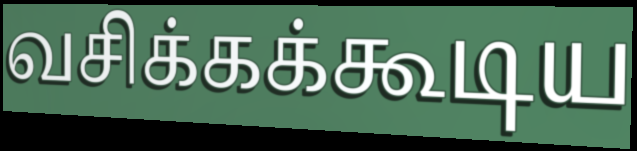
வசிக்கக்கூடிய